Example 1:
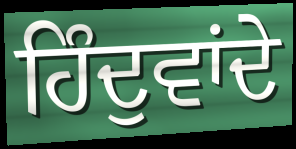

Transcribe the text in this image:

ਹਿੰਦੁਵਾਂਦੇ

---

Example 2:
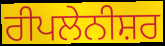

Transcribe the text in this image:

ਰੀਪਲੇਨੀਸ਼ਰ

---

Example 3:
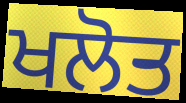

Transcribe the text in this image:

ਖਲੋਤ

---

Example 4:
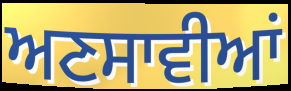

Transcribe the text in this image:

ਅਣਸਾਵੀਆਂ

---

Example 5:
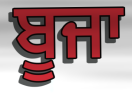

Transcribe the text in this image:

ਬੂਜਾ